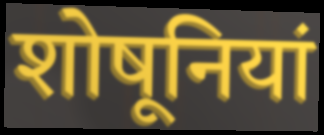
शोषूनियां